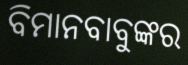
ବିମାନବାବୁଙ୍କର